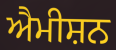
ਐਮੀਸ਼ਨ